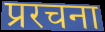
प्ररचना